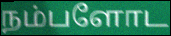
நம்பளோட